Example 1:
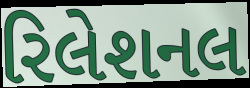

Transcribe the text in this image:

રિલેશનલ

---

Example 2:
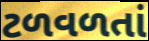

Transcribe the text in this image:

ટળવળતાં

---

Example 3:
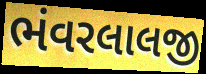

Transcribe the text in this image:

ભંવરલાલજી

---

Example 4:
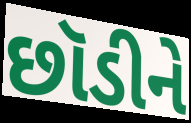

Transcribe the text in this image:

છૉડીને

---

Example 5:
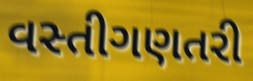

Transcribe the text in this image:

વસ્તીગણતરી